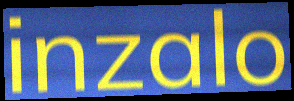
inzalo